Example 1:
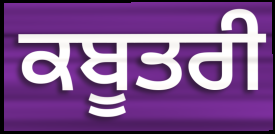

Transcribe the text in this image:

ਕਬੂਤਰੀ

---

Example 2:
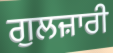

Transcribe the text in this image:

ਗੁਲਜ਼ਾਰੀ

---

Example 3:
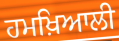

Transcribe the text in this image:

ਹਮਖ਼ਿਆਲੀ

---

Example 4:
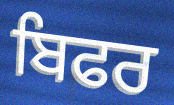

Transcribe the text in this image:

ਬਿਫਰ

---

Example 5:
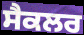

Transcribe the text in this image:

ਸੈਕਲਰ